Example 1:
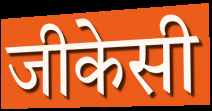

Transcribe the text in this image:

जीकेसी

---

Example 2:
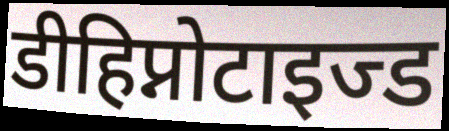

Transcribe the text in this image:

डीहिप्नोटाइज्ड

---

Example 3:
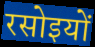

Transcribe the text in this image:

रसोइयों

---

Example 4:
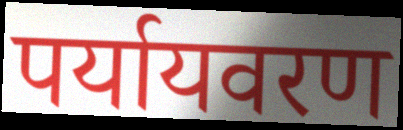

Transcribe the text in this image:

पर्यायवरण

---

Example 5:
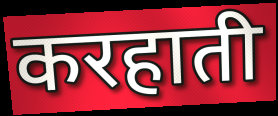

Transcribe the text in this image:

करहाती